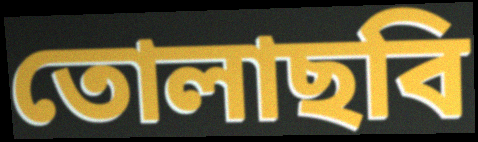
তোলাছবি